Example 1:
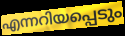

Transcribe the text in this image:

എന്നറിയപ്പെടും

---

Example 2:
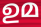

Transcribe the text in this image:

ഉമ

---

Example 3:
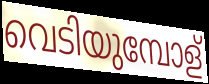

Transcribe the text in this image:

വെടിയുമ്പോള്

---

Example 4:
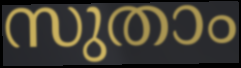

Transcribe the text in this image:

സുതാം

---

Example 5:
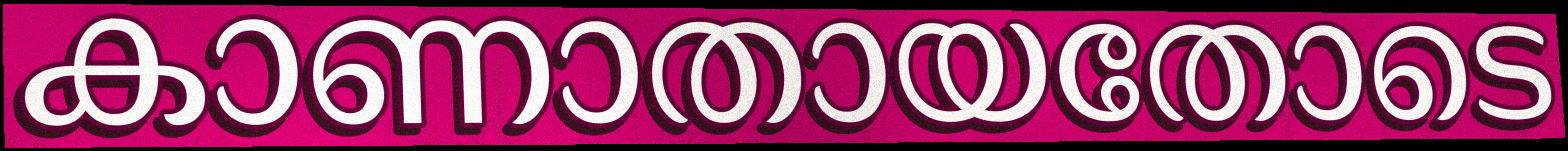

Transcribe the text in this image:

കാണാതായതോടെ